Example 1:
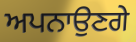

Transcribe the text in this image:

ਅਪਨਾਉਣਗੇ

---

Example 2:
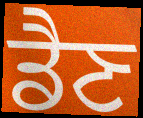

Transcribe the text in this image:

ਡੈਣ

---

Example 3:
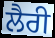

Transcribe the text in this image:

ਲੈਰੀ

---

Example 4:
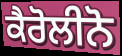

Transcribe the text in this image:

ਕੈਰੋਲੀਨੋ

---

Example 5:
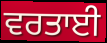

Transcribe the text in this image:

ਵਰਤਾਈ